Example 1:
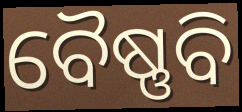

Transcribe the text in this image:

ବୈଷ୍ଣବି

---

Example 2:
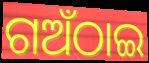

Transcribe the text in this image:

ଗଅଁଠାଇ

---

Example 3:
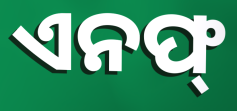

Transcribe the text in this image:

ଏନଫ୍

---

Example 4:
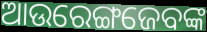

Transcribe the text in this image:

ଆଉରେଙ୍ଗଜେବଙ୍କ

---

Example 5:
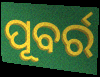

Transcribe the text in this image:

ପୂବର୍ର